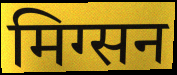
मिग्सन